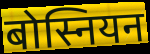
बोस्नियन